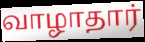
வாழாதார்